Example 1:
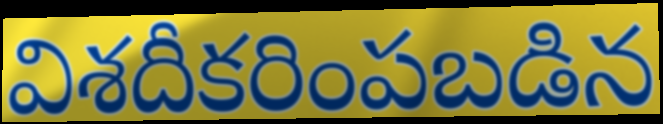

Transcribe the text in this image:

విశదీకరింపబడిన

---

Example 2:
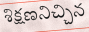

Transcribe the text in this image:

శిక్షణనిచ్చిన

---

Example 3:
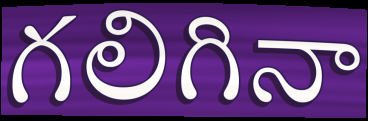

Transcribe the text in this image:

గలిగినా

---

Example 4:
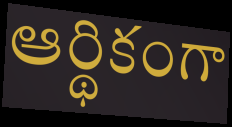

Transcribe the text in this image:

ఆర్థికంగా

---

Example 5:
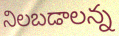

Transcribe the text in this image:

నిలబడాలన్న